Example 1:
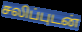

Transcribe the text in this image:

சலிப்புடன்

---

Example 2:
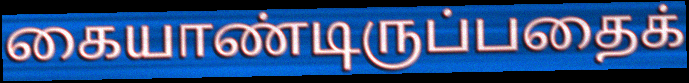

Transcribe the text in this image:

கையாண்டிருப்பதைக்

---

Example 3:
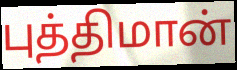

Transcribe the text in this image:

புத்திமான்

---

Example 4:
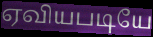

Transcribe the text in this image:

ஏவியபடியே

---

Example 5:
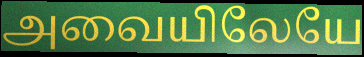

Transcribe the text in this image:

அவையிலேயே